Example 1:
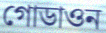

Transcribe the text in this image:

গোডাওন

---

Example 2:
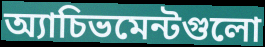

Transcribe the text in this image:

অ্যাচিভমেন্টগুলো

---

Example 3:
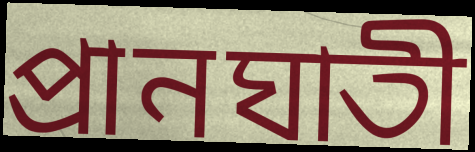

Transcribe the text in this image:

প্রানঘাতী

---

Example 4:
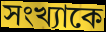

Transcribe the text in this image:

সংখ্যাকে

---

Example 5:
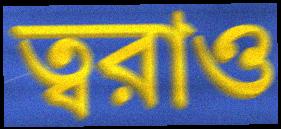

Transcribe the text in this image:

ত্বরাও